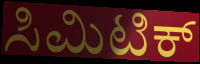
ಸಿಮಿಟಿಕ್